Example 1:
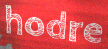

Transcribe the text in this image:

hodre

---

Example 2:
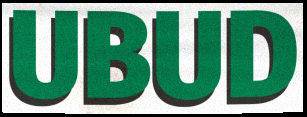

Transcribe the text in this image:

UBUD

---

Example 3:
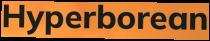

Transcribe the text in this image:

Hyperborean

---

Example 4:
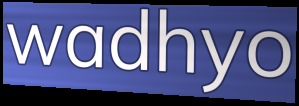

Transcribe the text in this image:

wadhyo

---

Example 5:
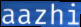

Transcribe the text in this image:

aazhi